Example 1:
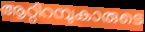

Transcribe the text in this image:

ആറ്റിറമ്പുകാരുടെ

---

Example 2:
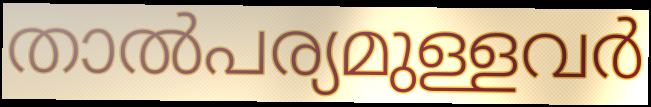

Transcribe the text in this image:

താൽപര്യമുള്ളവർ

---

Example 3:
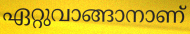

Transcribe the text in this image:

ഏറ്റുവാങ്ങാനാണ്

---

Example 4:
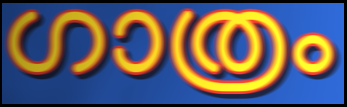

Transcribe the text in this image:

ഗാത്രം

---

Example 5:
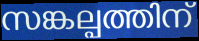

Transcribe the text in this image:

സങ്കല്പത്തിന്